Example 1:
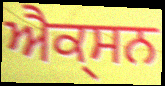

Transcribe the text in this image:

ਐਕ੍ਸਨ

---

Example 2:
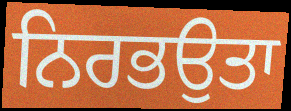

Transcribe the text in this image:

ਨਿਰਭਉਤਾ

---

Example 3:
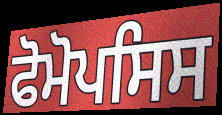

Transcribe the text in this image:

ਫੋਮੋਪਸਿਸ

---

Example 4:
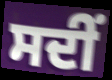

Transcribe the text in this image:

ਸਦੀਂ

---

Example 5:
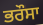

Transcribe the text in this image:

ਭਰੌਸਾ